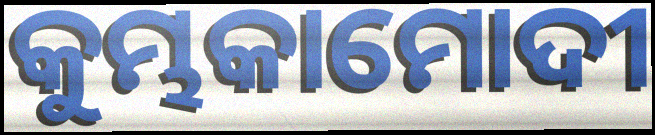
କୁମ୍ଭକାମୋଦୀ